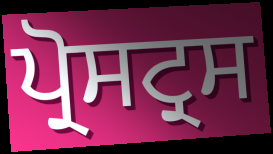
ਪ੍ਰੋਸਟ੍ਰਸ